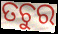
ତଚୁର